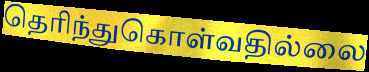
தெரிந்துகொள்வதில்லை